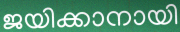
ജയിക്കാനായി